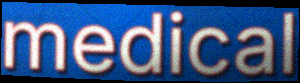
medical